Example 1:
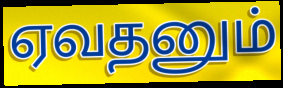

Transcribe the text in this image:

ஏவதனும்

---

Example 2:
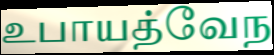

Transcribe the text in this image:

உபாயத்வேந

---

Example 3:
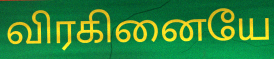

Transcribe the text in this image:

விரகினையே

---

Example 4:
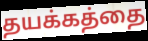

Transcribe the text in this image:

தயக்கத்தை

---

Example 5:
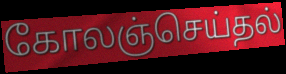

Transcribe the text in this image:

கோலஞ்செய்தல்